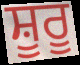
ਸ਼ੂਰੂ